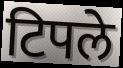
टिपले